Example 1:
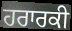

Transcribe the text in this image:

ਹਰਾਰਕੀ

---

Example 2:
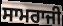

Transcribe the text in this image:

ਸਾਮਰਾਜੀ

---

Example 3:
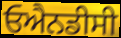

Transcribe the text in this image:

ਓਐਨਡੀਸੀ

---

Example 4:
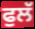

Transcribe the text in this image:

ਫੁਲੱ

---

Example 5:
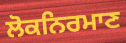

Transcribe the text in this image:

ਲੋਕਨਿਰਮਾਣ